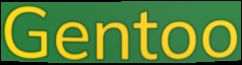
Gentoo